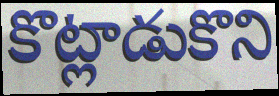
కొట్లాడుకొని